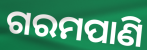
ଗରମପାଣି